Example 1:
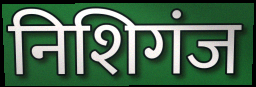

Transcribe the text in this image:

निशिगंज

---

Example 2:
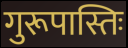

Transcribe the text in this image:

गुरूपास्तिः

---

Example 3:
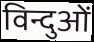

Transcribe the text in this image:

विन्दुओं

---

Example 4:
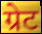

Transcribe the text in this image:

ग्रेट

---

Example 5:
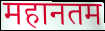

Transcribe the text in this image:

महानतम